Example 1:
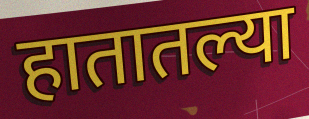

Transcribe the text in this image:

हातातल्या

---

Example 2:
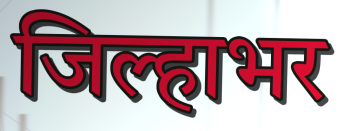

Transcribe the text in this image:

जिल्हाभर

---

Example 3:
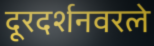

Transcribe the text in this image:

दूरदर्शनवरले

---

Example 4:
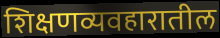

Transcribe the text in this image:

शिक्षणव्यवहारातील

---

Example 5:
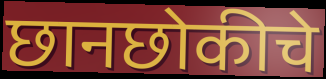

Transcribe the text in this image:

छानछोकीचे